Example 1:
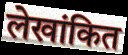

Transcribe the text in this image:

लेखांकित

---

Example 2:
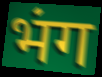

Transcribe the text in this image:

भंग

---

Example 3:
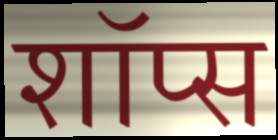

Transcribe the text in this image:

शॉप्स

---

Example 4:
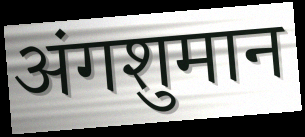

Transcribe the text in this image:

अंगशुमान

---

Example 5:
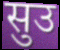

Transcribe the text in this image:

सुउ